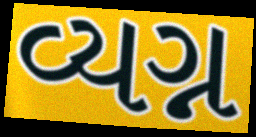
વ્યગ્ન